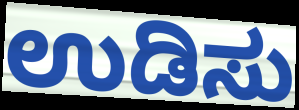
ಉಡಿಸು